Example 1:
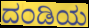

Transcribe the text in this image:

ದಂಡಿಯ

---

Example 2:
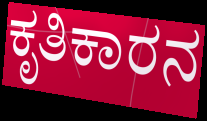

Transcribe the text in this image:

ಕೃತಿಕಾರನ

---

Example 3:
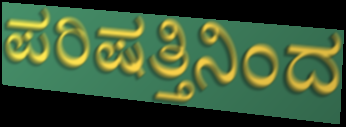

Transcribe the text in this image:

ಪರಿಷತ್ತಿನಿಂದ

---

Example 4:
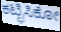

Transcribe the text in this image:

ಕಟ್ಟಿಸಿಕೋ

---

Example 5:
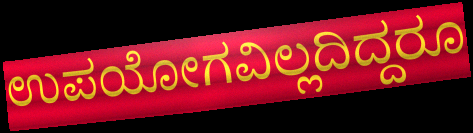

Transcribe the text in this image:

ಉಪಯೋಗವಿಲ್ಲದಿದ್ದರೂ